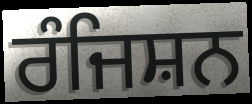
ਰੰਜਿਸ਼ਨ